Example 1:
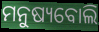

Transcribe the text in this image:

ମନୁଷ୍ୟବୋଲି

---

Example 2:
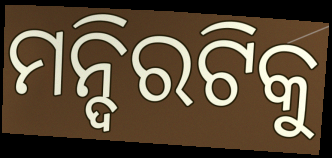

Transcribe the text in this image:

ମନ୍ଦିରଟିକୁ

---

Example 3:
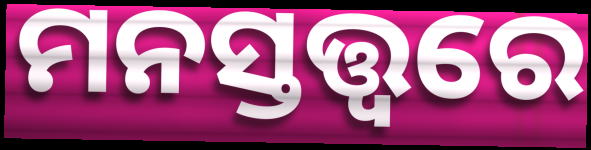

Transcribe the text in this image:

ମନସ୍ତତ୍ତ୍ଵରେ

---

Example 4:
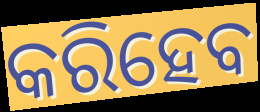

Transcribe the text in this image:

କରିହେବ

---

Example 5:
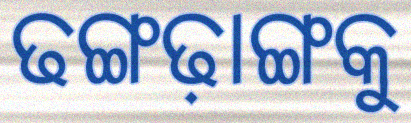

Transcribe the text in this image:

ଢଙ୍ଗଢ଼ାଙ୍ଗକୁ